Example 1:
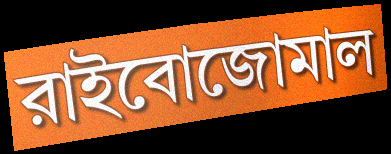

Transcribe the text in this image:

রাইবোজোমাল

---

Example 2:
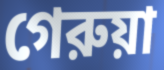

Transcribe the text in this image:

গেরুয়া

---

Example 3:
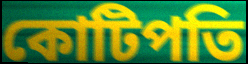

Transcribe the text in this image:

কোটিপতি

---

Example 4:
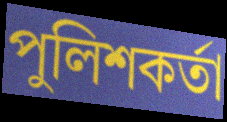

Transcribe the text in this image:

পুলিশকর্তা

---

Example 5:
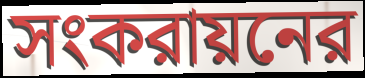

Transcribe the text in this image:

সংকরায়নের